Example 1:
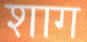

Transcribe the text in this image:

शाग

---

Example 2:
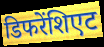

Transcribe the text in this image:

डिफरेंशिएट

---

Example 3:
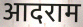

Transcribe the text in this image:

आदराम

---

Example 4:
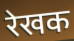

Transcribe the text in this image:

रेखक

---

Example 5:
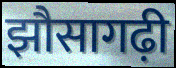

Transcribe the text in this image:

झौसागढ़ी